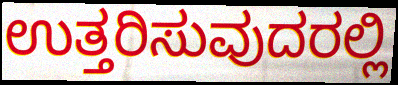
ಉತ್ತರಿಸುವುದರಲ್ಲಿ